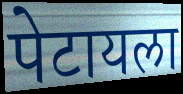
पेटायला